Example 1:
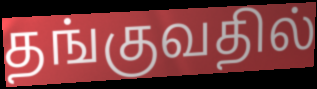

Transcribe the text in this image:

தங்குவதில்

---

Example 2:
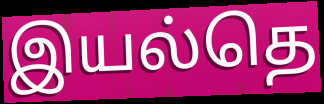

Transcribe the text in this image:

இயல்தெ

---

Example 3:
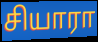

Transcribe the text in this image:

சியாரா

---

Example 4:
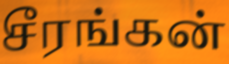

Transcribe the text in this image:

சீரங்கன்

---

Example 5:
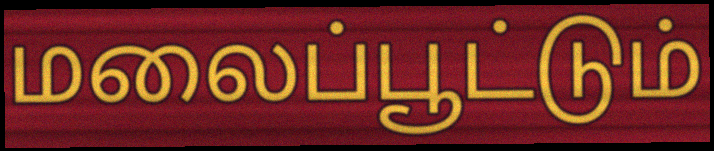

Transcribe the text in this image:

மலைப்பூட்டும்